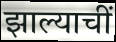
झाल्याचीं